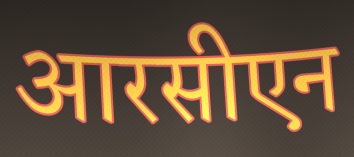
आरसीएन